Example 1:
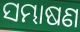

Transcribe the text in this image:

ସମ୍ଭାଷଣ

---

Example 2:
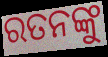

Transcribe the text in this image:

ରତନଙ୍କୁ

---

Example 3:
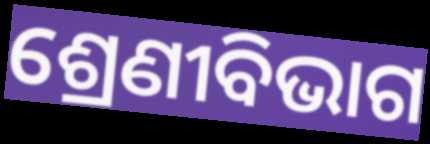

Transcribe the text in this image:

ଶ୍ରେଣୀବିଭାଗ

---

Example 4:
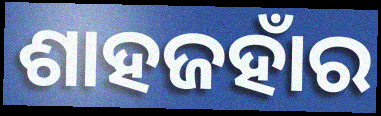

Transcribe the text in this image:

ଶାହଜହାଁର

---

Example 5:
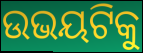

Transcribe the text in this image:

ଉଭୟଟିକୁ